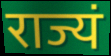
राज्यं